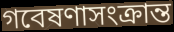
গবেষণাসংক্রান্ত